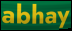
abhay